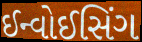
ઈન્વોઈસિંગ